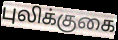
புலிக்குகை